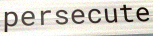
persecute